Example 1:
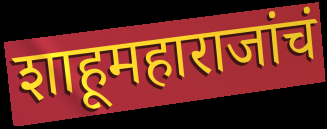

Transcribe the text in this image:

शाहूमहाराजांचं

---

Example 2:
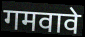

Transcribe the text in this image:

गमवावे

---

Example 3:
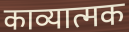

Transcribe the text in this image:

काव्यात्मक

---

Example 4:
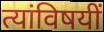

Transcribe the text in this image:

त्यांविषयीं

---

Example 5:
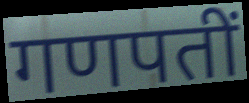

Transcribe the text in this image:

गणपतीं